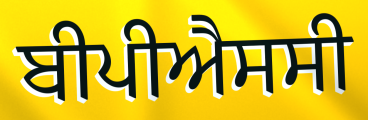
ਬੀਪੀਐਸਸੀ